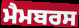
ਮੈਮਬਰਸ